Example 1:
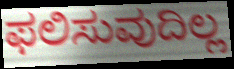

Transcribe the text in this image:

ಫಲಿಸುವುದಿಲ್ಲ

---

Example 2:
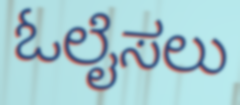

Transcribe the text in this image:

ಓಲೈಸಲು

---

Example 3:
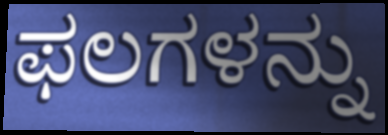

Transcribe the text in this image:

ಫಲಗಳನ್ನು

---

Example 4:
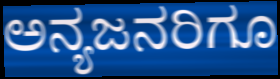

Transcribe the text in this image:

ಅನ್ಯಜನರಿಗೂ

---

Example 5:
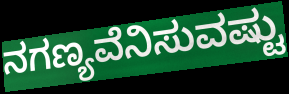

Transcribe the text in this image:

ನಗಣ್ಯವೆನಿಸುವಷ್ಟು